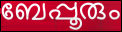
ബേപ്പൂരും